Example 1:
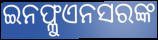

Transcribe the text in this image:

ଇନଫ୍ଳୁଏନସରଙ୍କ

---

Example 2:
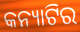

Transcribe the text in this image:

କନ୍ୟାଟିର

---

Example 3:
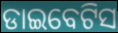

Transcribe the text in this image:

ଡାଇବେଟିସ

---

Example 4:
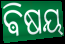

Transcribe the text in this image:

ଵିଷୟ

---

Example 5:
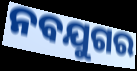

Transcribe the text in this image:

ନବଯୁଗର